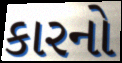
કારનો